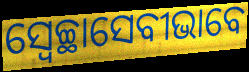
ସ୍ୱେଚ୍ଛାସେବୀଭାବେ